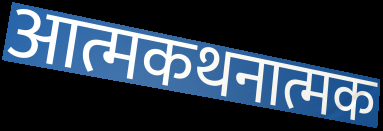
आत्मकथनात्मक